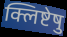
क्लिष्टेषु